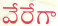
వేరేగా